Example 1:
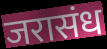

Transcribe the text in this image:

जरासंध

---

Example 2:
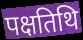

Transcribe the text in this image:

पक्षतिथि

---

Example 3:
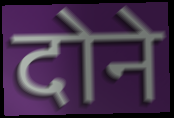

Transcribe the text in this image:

दोने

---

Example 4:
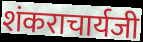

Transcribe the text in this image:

शंकराचार्यजी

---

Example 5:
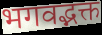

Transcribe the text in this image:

भगवद्भक्त